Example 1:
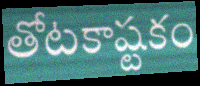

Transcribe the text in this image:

తోటకాష్టకం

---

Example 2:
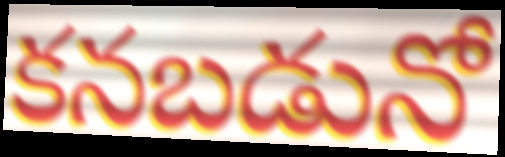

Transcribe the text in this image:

కనబడునో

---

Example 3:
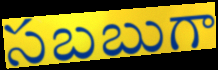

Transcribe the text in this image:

సబబుగా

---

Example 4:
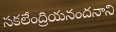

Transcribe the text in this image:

సకలేంద్రియనందనాని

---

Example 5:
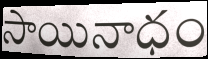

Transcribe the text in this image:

సాయినాధం